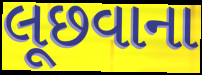
લૂછવાના